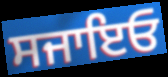
ਸਜਾਇਓ